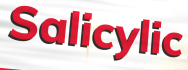
Salicylic